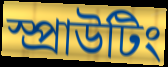
স্প্রাউটিং